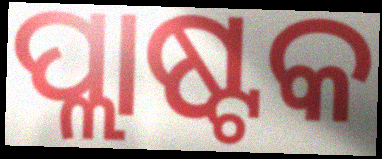
ପ୍ଲାଷ୍ଟକ